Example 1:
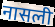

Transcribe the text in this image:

नासली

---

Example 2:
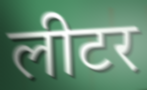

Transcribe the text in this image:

लीटर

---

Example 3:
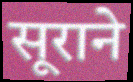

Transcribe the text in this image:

सूराने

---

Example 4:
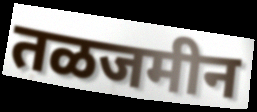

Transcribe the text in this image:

तळजमीन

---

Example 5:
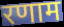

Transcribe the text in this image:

रणाम